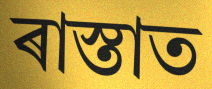
ৰাস্তাত